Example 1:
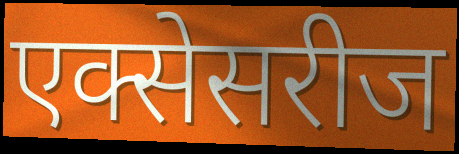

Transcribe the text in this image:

एक्सेसरीज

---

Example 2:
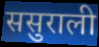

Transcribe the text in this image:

ससुराली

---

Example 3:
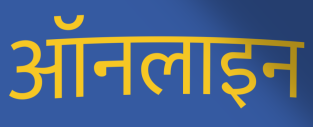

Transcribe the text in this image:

ऑनलाइन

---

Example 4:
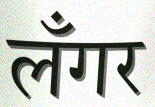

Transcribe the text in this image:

लँगर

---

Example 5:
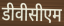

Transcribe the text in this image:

डीवीसीएम